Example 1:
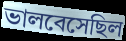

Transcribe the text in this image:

ভালবেসেছিল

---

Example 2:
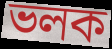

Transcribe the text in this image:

ভলক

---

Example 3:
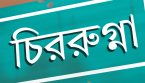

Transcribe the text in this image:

চিররুগ্না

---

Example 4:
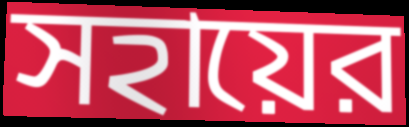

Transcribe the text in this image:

সহায়ের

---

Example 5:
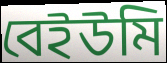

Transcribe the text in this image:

বেইউমি